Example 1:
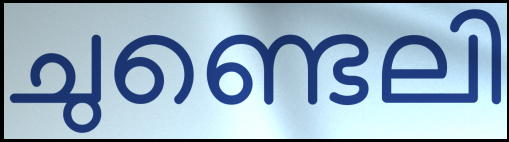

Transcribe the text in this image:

ചുണ്ടെലി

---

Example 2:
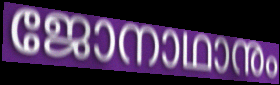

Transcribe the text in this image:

ജോനാഥാനും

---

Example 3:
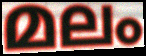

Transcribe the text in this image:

മലം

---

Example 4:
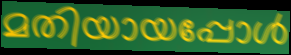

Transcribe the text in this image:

മതിയായപ്പോൾ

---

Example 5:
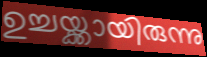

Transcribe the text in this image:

ഉച്ചയ്ക്കായിരുന്നു